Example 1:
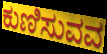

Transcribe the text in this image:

ಕುಣಿಸುವವ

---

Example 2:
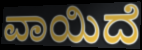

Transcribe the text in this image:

ವಾಯಿದೆ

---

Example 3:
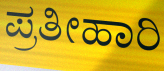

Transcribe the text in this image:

ಪ್ರತೀಹಾರಿ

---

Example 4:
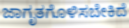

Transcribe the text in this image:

ಜಾಗೃತಗೊಳಿಸಬೇಕಿದೆ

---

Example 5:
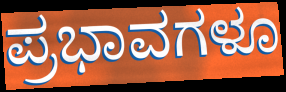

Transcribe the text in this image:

ಪ್ರಭಾವಗಳೂ